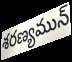
శరణ్యమున్